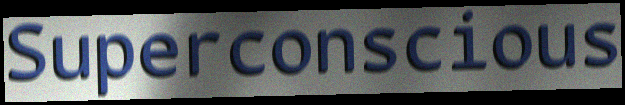
Superconscious